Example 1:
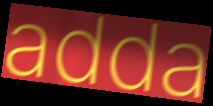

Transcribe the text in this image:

adda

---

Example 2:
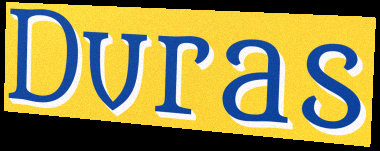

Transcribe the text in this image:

Duras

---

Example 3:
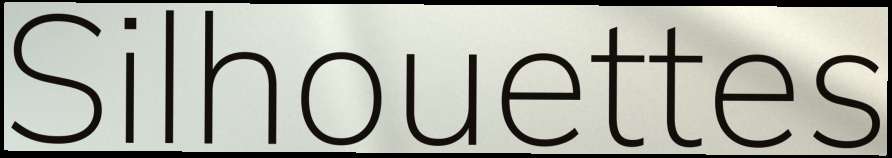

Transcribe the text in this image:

Silhouettes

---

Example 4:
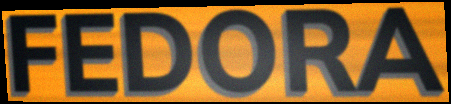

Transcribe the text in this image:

FEDORA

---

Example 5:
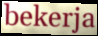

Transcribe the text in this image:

bekerja